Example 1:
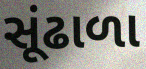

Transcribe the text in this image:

સૂંઢાળા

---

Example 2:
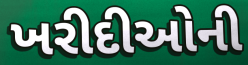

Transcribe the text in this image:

ખરીદીઓની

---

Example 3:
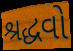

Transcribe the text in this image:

શ્રદ્ધવો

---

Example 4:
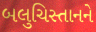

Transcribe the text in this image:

બલુચિસ્તાનને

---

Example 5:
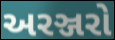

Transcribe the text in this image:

અરઞ્જરો